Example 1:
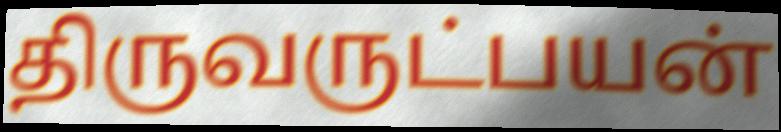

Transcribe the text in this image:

திருவருட்பயன்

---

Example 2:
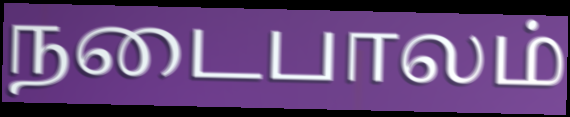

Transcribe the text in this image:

நடைபாலம்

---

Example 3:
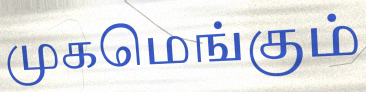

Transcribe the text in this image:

முகமெங்கும்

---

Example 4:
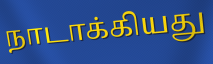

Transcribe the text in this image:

நாடாக்கியது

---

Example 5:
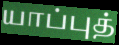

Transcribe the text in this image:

யாப்புத்